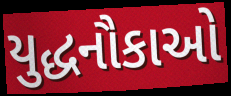
યુદ્ધનૌકાઓ